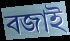
বজাই